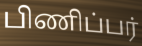
பிணிப்பர்